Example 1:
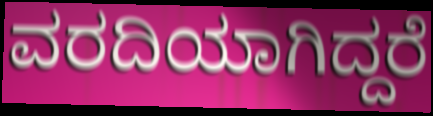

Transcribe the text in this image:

ವರದಿಯಾಗಿದ್ದರೆ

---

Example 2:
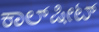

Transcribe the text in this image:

ಕಾಲ್‌ಷೀಟ್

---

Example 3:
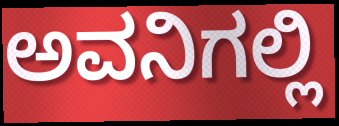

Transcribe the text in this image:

ಅವನಿಗಲ್ಲಿ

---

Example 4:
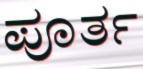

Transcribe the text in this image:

ಪೂರ್ತ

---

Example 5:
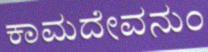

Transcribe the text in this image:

ಕಾಮದೇವನುಂ